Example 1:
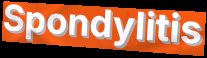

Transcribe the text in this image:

Spondylitis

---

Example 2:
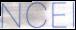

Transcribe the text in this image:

NCEI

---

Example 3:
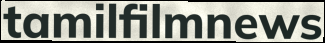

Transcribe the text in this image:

tamilfilmnews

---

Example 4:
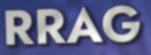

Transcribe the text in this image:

RRAG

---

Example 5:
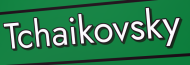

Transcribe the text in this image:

Tchaikovsky